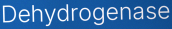
Dehydrogenase